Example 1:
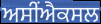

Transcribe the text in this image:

ਅਸੀਂਐਕਸਲ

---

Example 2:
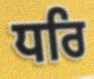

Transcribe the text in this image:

ਧਰਿ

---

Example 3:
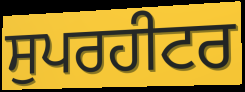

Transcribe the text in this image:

ਸੁਪਰਹੀਟਰ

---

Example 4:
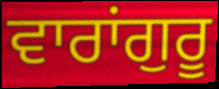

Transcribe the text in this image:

ਵਾਰਾਂਗੁਰੂ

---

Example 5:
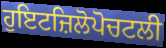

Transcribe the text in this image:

ਹੁਇਟਜ਼ਿਲੋਪੋਚਟਲੀ